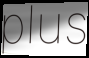
plus